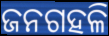
ଜନଗହଳି